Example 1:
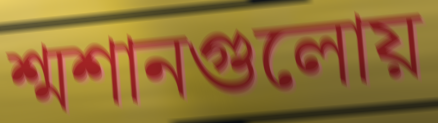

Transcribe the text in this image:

শ্মশানগুলোয়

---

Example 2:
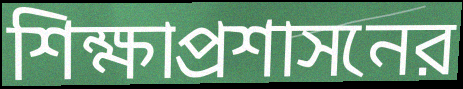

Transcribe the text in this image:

শিক্ষাপ্রশাসনের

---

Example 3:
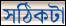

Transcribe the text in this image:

সঠিকটা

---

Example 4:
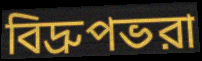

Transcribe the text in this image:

বিদ্রুপভরা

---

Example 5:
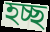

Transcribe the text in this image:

হচ্ছ